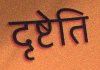
दृष्टेति